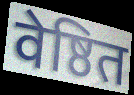
वेष्ठित